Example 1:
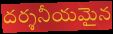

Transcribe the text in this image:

దర్శనీయమైన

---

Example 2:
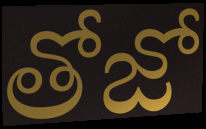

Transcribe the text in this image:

తోజో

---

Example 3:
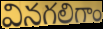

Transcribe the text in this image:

వినగలిగాం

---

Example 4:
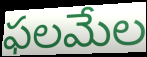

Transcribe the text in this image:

ఫలమేల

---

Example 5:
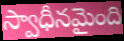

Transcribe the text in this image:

స్వాధీనమైంది